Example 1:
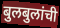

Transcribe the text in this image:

बुलबुलांची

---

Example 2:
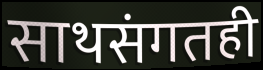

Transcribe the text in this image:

साथसंगतही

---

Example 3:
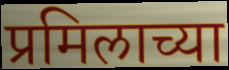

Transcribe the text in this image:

प्रमिलाच्या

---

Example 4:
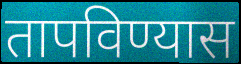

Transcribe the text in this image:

तापविण्यास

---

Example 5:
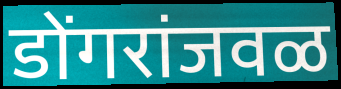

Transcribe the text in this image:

डोंगरांजवळ